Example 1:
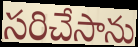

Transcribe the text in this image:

సరిచేసాను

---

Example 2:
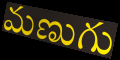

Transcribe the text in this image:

మణుగు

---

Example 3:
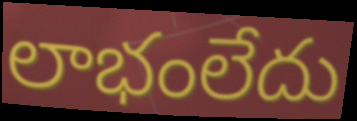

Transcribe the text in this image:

లాభంలేదు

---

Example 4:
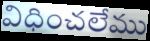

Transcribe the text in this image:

విధించలేము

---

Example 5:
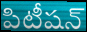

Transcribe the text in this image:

పిటీషన్